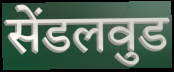
सेंडलवुड